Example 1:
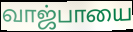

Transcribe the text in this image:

வாஜ்பாயை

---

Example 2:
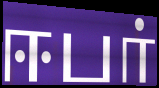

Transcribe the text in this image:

ஈபர்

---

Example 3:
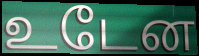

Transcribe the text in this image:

உடேன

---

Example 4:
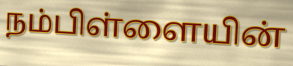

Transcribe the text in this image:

நம்பிள்ளையின்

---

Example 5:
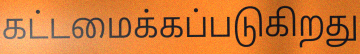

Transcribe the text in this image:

கட்டமைக்கப்படுகிறது